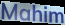
Mahim